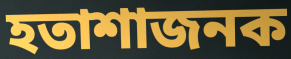
হতাশাজনক